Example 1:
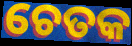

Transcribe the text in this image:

ଚେତକ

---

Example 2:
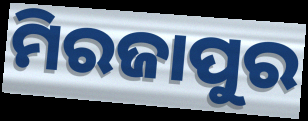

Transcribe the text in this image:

ମିରଜାପୁର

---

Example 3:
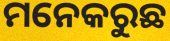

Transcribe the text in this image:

ମନେକରୁଛ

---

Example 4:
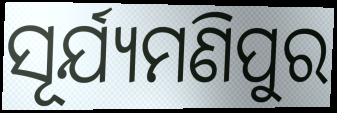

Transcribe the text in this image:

ସୂର୍ଯ୍ୟମଣିପୁର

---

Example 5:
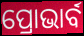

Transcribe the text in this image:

ପ୍ରୋଭାର୍ବ